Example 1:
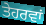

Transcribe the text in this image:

ਤੇਹਰਵਾਂ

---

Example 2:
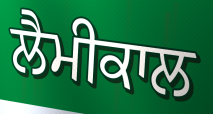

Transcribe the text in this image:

ਲੈਮੀਕਾਲ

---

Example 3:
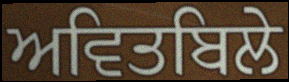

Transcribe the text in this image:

ਅਵਿਤਬਿਲੇ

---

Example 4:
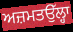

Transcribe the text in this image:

ਅਜ਼ਮਤਉੱਲ੍ਹਾ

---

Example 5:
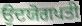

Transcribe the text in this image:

ਉਦਯੋਗਪਤੀ